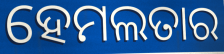
ହେମଲତାର